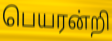
பெயரன்றி